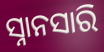
ସ୍ନାନସାରି